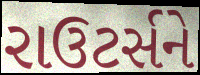
રાઉટર્સને